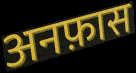
अनफ़ास